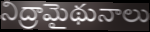
నిద్రామైథునాలు